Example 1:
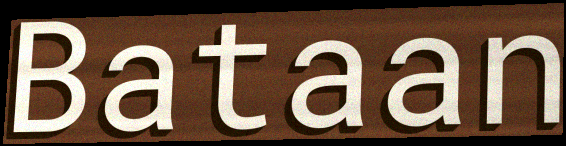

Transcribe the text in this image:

Bataan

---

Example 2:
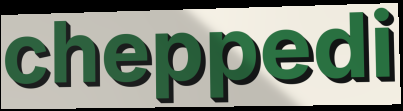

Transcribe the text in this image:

cheppedi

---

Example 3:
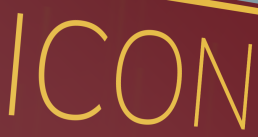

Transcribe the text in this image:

ICON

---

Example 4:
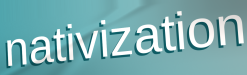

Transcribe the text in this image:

nativization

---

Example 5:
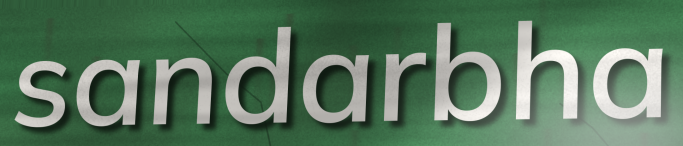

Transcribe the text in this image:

sandarbha